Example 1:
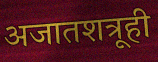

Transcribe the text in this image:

अजातशत्रूही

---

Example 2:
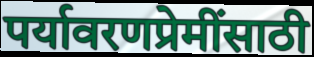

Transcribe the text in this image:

पर्यावरणप्रेमींसाठी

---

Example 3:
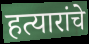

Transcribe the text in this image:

हत्यारांचे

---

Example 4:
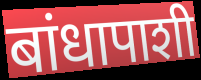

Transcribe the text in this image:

बांधापाशी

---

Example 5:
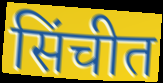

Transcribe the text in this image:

सिंचीत